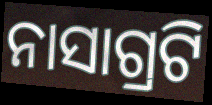
ନାସାଗ୍ରଟି